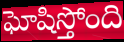
ఘోషిస్తోంది